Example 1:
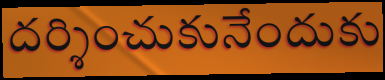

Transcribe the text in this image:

దర్శించుకునేందుకు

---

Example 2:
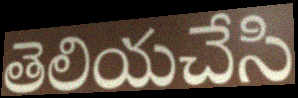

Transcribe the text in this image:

తెలియచేసి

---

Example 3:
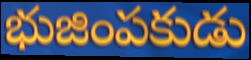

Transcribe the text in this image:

భుజింపకుడు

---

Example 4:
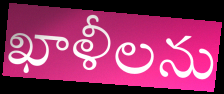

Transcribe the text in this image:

ఖాళీలను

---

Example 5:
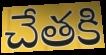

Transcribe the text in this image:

చేతకి